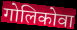
गोलिकोवा